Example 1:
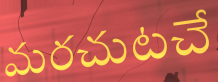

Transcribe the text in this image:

మరచుటచే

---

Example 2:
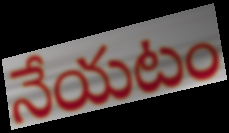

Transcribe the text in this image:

నేయటం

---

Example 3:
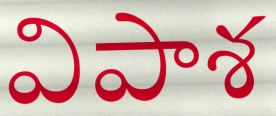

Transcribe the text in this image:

విపాశ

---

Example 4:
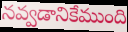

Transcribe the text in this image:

నవ్వడానికేముంది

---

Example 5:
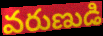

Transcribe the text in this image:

వరుణుడి